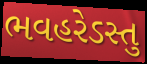
ભવહરેઽસ્તુ